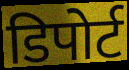
डिपोर्ट